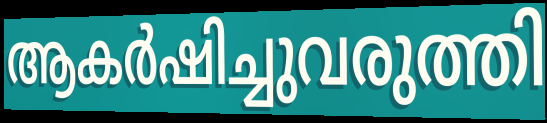
ആകർഷിച്ചുവരുത്തി